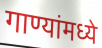
गाण्यांमध्ये